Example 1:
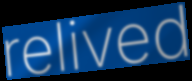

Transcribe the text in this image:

relived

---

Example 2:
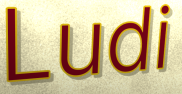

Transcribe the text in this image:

Ludi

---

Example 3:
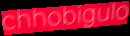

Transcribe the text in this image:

chhobigulo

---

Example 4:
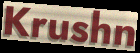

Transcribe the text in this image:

Krushn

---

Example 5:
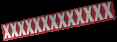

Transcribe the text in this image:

xxxxxxxxxxxxx